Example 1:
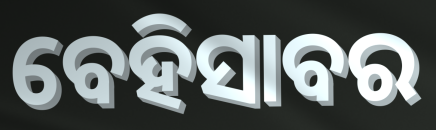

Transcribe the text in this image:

ବେହିସାବର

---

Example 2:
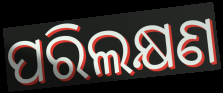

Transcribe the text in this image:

ପରିଲକ୍ଷଣ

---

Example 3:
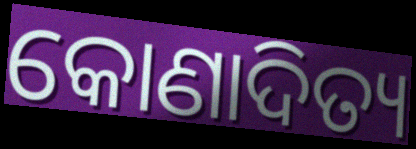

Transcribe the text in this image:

କୋଣାଦିତ୍ୟ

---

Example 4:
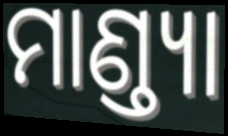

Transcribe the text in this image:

ମାଣ୍ଡ୍ୟା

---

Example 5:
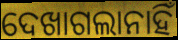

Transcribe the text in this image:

ଦେଖାଗଲାନାହିଁ